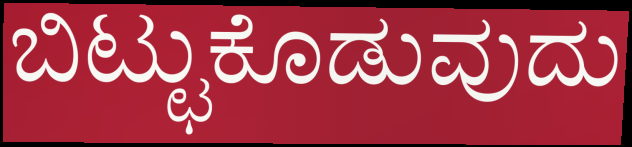
ಬಿಟ್ಟುಕೊಡುವುದು